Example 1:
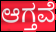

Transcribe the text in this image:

ಆಗ್ತವೆ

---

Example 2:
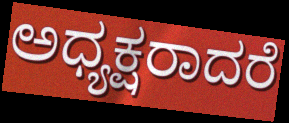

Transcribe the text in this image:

ಅಧ್ಯಕ್ಷರಾದರೆ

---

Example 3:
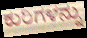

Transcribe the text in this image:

ಕುರಿಗಳನ್ನು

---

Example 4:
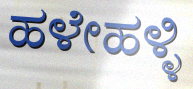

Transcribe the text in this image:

ಹಳೇಹಳ್ಳಿ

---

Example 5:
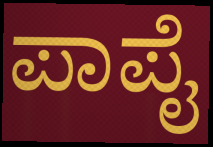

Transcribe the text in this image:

ಪಾಪೈ